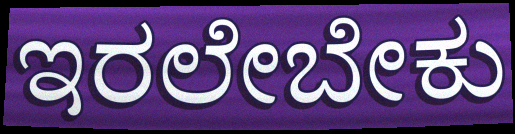
ಇರಲೇಬೇಕು